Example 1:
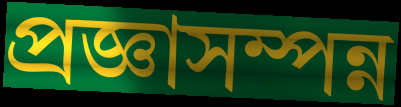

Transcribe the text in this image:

প্রজ্ঞাসম্পন্ন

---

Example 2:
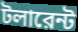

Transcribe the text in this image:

টলারেন্ট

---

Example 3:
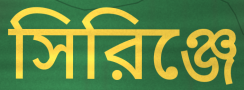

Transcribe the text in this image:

সিরিঞ্জে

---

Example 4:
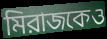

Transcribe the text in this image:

মিরাজকেও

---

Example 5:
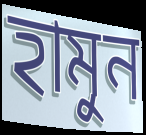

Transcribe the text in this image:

হামুন